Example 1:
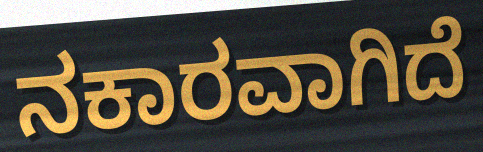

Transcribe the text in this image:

ನಕಾರವಾಗಿದೆ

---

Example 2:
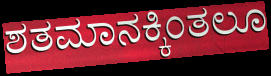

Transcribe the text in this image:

ಶತಮಾನಕ್ಕಿಂತಲೂ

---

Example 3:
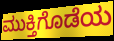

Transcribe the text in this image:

ಮುಕ್ತಿಗೊಡೆಯ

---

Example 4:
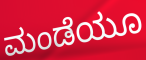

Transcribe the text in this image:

ಮಂಡೆಯೂ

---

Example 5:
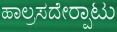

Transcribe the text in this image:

ಹಾಲ್ರಸದೇರ‍್ಪಾಟು